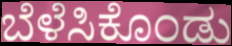
ಬೆಳೆಸಿಕೊಂಡು